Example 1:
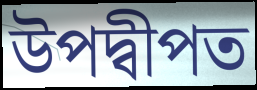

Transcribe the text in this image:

উপদ্বীপত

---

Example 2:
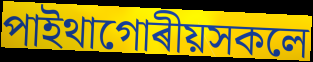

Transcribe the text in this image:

পাইথাগোৰীয়সকলে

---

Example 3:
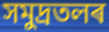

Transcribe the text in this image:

সমুদ্ৰতলৰ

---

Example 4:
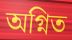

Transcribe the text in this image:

অগ্নিত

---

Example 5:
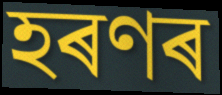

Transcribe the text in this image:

হৰণৰ